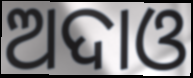
ଅଦାଓ